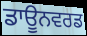
ਡਾਊਨਵਰਡ